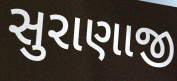
સુરાણાજી